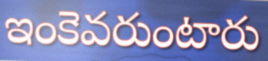
ఇంకెవరుంటారు